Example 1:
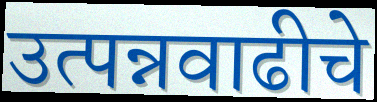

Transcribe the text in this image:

उत्पन्नवाढीचे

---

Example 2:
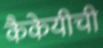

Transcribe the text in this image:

कैकेयीची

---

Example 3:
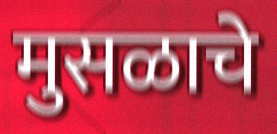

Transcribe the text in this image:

मुसळाचे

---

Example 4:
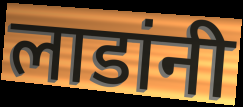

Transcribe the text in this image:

लाडांनी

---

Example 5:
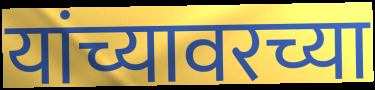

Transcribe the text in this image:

यांच्यावरच्या